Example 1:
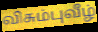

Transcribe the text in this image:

விசும்புவீழ்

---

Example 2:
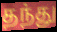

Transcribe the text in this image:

தந்து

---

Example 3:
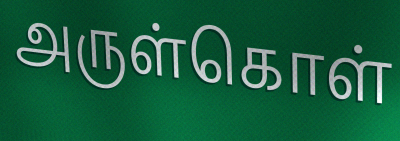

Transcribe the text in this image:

அருள்கொள்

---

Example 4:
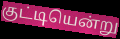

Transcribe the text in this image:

குட்டியென்று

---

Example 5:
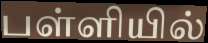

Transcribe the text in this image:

பள்ளியில்